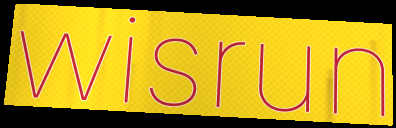
wisrun